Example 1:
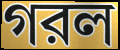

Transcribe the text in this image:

গরল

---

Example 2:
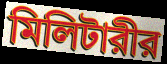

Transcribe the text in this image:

মিলিটারীর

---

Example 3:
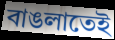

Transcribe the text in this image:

বাঙলাতেই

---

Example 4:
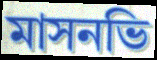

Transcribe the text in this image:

মাসনভি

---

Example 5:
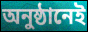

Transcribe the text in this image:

অনুষ্ঠানেই